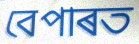
বেপাৰত